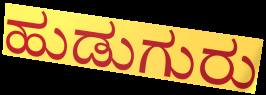
ಹುಡುಗುರು